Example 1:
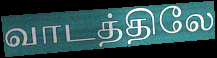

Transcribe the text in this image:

வாடத்திலே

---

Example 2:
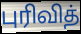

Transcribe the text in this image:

புரிவித்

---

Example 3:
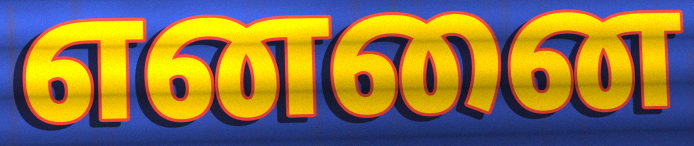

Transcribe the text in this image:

எனனை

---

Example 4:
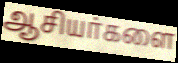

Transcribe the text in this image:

ஆசியர்களை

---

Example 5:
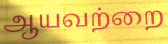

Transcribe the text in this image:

ஆயவற்றை